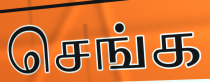
செங்க